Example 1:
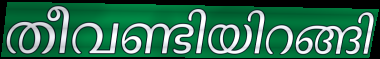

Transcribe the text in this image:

തീവണ്ടിയിറങ്ങി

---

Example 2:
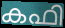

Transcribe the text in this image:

കഫി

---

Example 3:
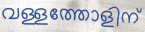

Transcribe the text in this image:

വള്ളത്തോളിന്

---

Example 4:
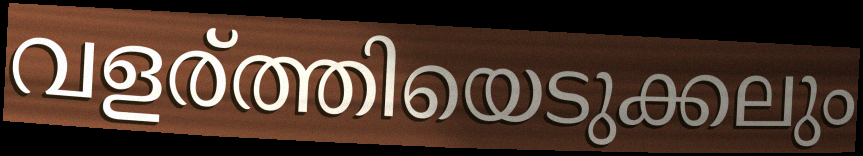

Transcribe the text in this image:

വളര്ത്തിയെടുക്കലും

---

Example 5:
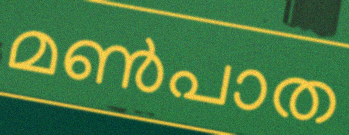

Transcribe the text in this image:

മൺപാത